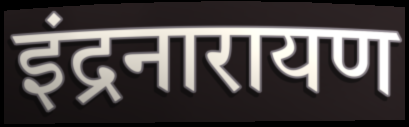
इंद्रनारायण